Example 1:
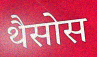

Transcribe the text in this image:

थैसोस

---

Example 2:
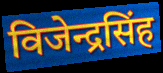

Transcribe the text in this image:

विजेन्द्रसिंह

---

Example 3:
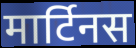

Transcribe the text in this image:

मार्टिनस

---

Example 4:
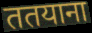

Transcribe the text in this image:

ततयाना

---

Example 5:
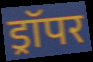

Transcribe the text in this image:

ड्रॉपर